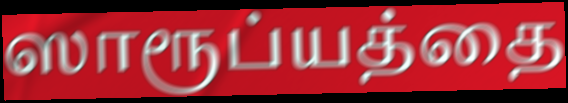
ஸாரூப்யத்தை